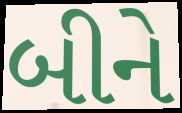
બીને